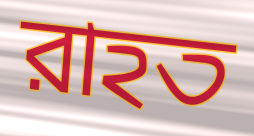
রাহত